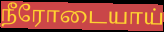
நீரோடையாய்